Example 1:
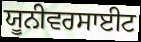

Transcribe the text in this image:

ਯੂਨੀਵਰਸਾਈਟ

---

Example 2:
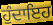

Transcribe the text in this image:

ਹੁੰਦਾਇਹ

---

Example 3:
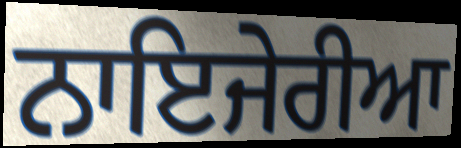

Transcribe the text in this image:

ਨਾਇਜੇਰੀਆ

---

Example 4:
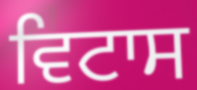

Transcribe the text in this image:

ਵਿਟਾਸ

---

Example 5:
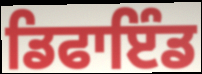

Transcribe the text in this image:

ਡਿਫਾਇੰਡ